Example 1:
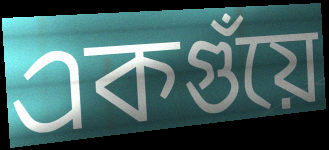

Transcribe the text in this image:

একগুঁয়ে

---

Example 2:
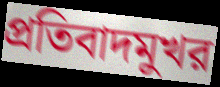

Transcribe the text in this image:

প্রতিবাদমুখর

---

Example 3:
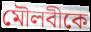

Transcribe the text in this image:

মৌলবীকে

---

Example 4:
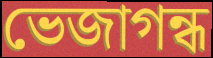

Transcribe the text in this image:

ভেজাগন্ধ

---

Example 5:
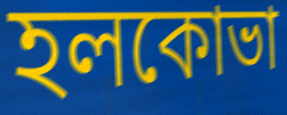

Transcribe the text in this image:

হলকোভা